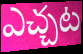
ఎచ్చట